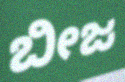
ಬೀಜ